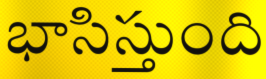
భాసిస్తుంది